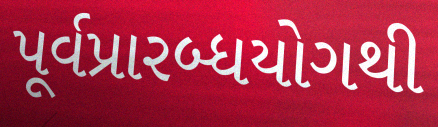
પૂર્વપ્રારબ્ધયોગથી